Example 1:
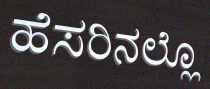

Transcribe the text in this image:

ಹೆಸರಿನಲ್ಲೊ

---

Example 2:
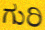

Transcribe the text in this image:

ಗುರಿ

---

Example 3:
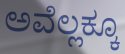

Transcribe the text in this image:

ಅವೆಲ್ಲಕ್ಕೂ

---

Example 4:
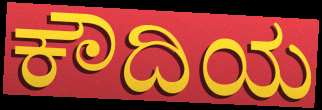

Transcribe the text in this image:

ಕೌದಿಯ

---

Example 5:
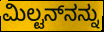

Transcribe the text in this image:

ಮಿಲ್ಟನ್‌ನನ್ನು